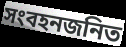
সংবহনজনিত